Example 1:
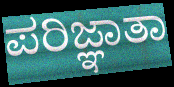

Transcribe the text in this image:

ಪರಿಜ್ಞಾತಾ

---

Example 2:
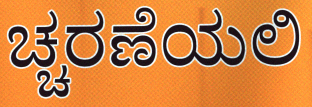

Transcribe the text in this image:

ಚ್ಚರಣೆಯಲಿ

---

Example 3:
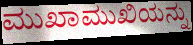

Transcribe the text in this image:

ಮುಖಾಮುಖಿಯನ್ನು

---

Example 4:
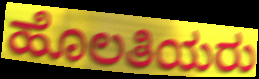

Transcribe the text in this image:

ಹೊಲತಿಯರು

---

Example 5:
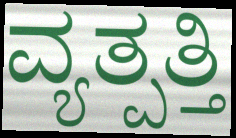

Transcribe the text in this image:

ವ್ಯತ್ಪತ್ತಿ